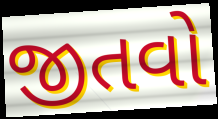
જીતવો